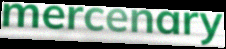
mercenary